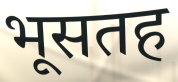
भूसतह